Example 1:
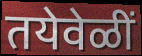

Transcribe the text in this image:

तयेवेळीं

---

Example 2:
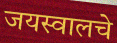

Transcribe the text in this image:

जयस्वालचे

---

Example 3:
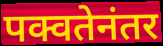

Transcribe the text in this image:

पक्वतेनंतर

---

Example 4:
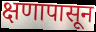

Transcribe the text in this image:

क्षणापासून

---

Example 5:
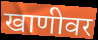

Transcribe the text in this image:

खाणीवर